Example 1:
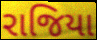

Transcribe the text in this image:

રાજિયા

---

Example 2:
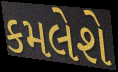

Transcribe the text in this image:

કમલેશે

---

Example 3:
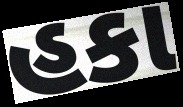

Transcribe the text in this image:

હકા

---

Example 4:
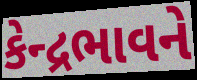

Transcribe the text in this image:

કેન્દ્રભાવને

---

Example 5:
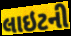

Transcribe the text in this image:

લાઇટની